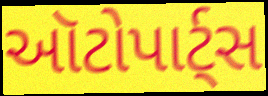
ઑટોપાર્ટ્સ